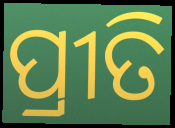
ପ୍ରୀତି